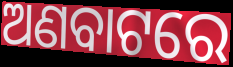
ଅଣବାଟରେ